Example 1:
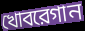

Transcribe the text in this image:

খোবরেগান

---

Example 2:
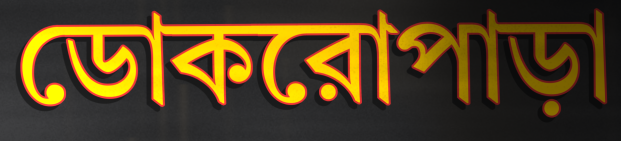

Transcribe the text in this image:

ডোকরোপাড়া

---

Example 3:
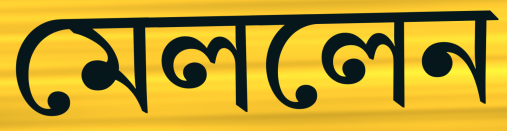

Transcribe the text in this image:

মেললেন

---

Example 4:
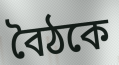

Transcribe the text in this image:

বৈঠকে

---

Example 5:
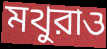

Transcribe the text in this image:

মথুরাও